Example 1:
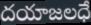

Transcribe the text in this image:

దయాజలధే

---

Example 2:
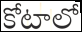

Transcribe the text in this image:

కోటాలో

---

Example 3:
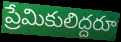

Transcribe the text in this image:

ప్రేమికులిద్దరూ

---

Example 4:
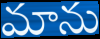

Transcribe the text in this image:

మాను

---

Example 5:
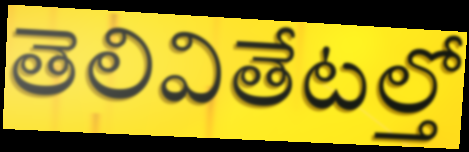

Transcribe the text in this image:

తెలివితేటల్తో